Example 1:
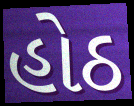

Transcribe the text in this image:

હોઠ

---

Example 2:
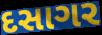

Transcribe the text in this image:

દસાગર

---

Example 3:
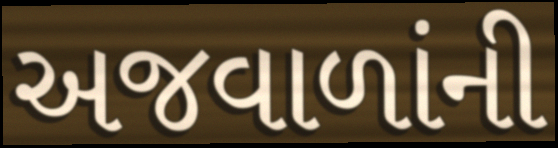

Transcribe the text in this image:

અજવાળાંની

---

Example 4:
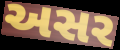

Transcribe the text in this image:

અસર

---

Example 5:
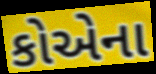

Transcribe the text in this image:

કોએના